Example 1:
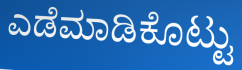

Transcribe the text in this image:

ಎಡೆಮಾಡಿಕೊಟ್ಟು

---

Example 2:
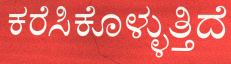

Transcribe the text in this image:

ಕರೆಸಿಕೊಳ್ಳುತ್ತಿದೆ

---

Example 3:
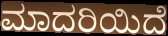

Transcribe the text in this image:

ಮಾದರಿಯಿದೆ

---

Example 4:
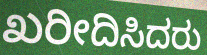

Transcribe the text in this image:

ಖರೀದಿಸಿದರು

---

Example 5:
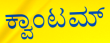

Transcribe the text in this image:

ಕ್ವಾಂಟಮ್